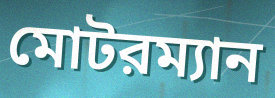
মোটরম্যান